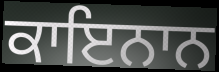
ਕਾਇਨਾਨ